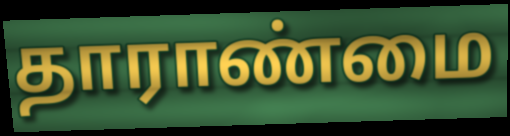
தாராண்மை